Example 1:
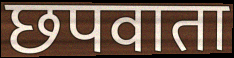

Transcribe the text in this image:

छपवाता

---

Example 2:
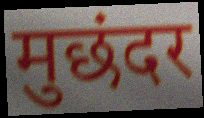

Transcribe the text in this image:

मुछंदर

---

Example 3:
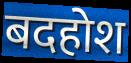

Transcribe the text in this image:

बदहोश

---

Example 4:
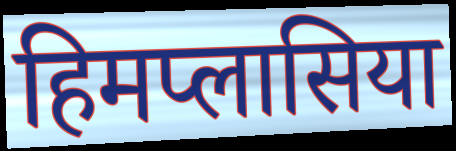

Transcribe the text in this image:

हिमप्लासिया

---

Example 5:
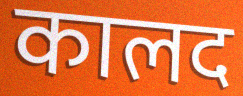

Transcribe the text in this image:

कालद